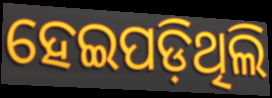
ହେଇପଡ଼ିଥିଲି